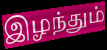
இழந்தும்